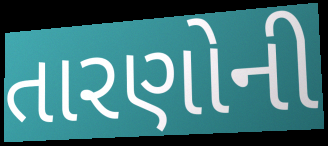
તારણોની